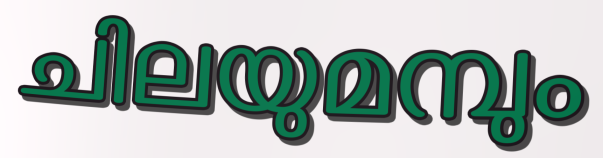
ചിലയുമമ്പും